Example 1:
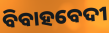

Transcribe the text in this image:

ବିବାହବେଦୀ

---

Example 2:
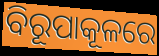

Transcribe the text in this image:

ବିରୂପାକୂଳରେ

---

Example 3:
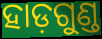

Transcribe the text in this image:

ହାଡ଼ଗୁଣ୍ଡ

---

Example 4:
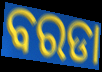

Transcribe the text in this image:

ବରଡା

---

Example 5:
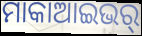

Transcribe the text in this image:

ମାକାଆଇଭର୍